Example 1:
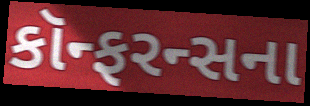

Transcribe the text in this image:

કૉન્ફરન્સના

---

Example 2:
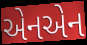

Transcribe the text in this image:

એનએન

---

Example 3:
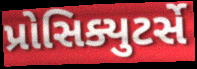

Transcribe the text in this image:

પ્રોસિક્યુટર્સે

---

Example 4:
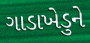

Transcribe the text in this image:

ગાડાખેડુને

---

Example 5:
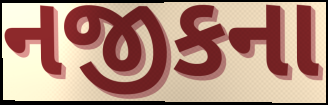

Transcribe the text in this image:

નજીકના